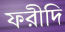
ফরীদি